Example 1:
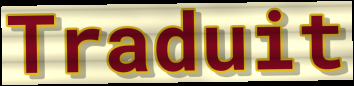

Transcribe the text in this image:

Traduit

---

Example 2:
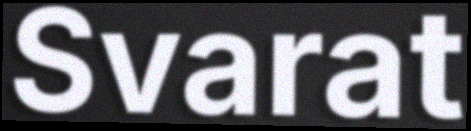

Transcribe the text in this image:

Svarat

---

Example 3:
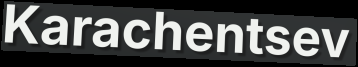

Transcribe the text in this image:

Karachentsev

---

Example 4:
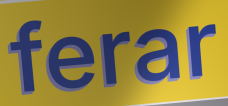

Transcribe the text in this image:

ferar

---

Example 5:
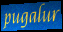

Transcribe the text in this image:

pugalur